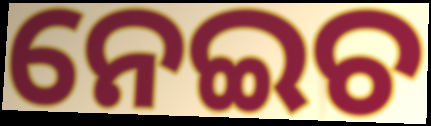
ନେଇଚ